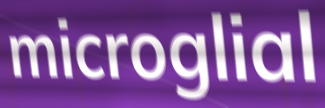
microglial